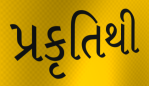
પ્રકૃતિથી